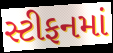
સ્ટીફનમાં